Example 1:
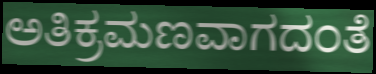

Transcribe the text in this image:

ಅತಿಕ್ರಮಣವಾಗದಂತೆ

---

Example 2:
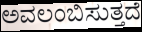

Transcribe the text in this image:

ಅವಲಂಬಿಸುತ್ತದೆ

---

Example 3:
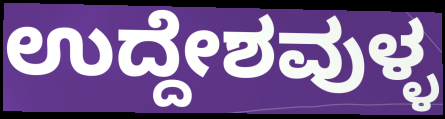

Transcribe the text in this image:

ಉದ್ದೇಶವುಳ್ಳ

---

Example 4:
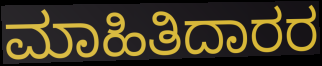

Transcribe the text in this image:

ಮಾಹಿತಿದಾರರ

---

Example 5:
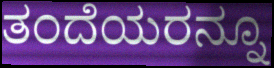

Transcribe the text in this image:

ತಂದೆಯರನ್ನೂ